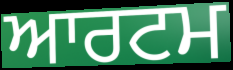
ਆਰਟਮ